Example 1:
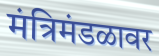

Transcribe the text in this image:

मंत्रिमंडळावर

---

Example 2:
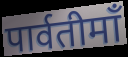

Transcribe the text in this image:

पार्वतीमाँ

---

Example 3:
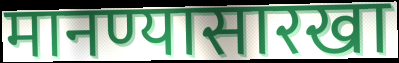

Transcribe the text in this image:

मानण्यासारखा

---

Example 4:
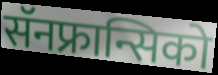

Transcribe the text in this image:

सॅनफ्रान्सिको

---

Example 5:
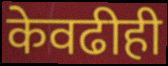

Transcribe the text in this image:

केवढीही